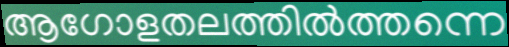
ആഗോളതലത്തിൽത്തന്നെ